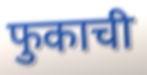
फुकाची